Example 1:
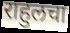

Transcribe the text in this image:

राहुलचा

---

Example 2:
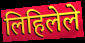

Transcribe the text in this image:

लिहिलेले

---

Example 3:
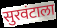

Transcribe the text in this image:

सुरवंटाला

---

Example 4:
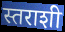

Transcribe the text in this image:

स्तराशी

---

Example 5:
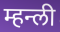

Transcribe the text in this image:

म्हन्ली